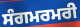
ਸੰਗਮਰਮਰੀ